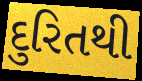
દુરિતથી